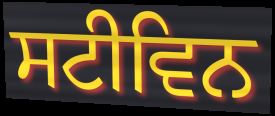
ਸਟੀਵਿਨ